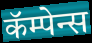
कॅम्पेन्स